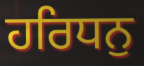
ਹਰਿਧਨੁ